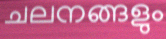
ചലനങ്ങളും